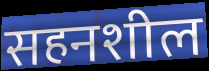
सहनशील